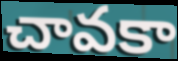
చావకా